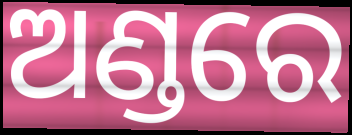
ଅଣ୍ଡରେ